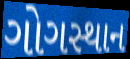
ગોગસ્થાન